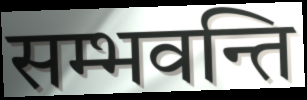
सम्भवन्ति